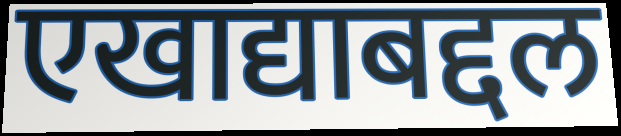
एखाद्याबद्दल